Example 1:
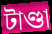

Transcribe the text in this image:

টাণ্ডা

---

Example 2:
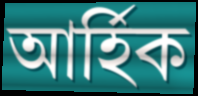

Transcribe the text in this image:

আৰ্হিক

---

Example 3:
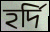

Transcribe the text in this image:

হৰ্দি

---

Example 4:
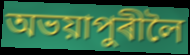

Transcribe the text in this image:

অভয়াপুৰীলৈ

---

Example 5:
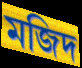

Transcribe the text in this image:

মজিদ